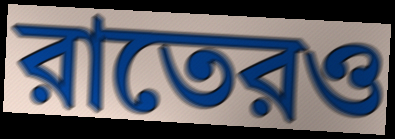
রাতেরও